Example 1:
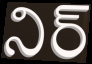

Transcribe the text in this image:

నిర్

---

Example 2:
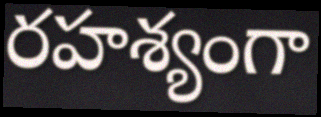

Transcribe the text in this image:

రహశ్యంగా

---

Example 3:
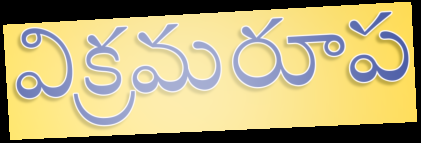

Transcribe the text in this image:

విక్రమరూప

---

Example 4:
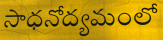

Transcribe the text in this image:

సాధనోద్యమంలో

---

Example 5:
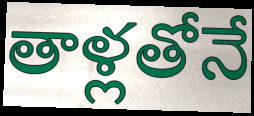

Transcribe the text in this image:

తాళ్లతోనే